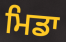
ਮਿਡਾ